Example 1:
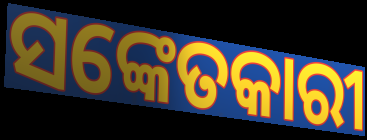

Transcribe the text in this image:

ସଙ୍କେତକାରୀ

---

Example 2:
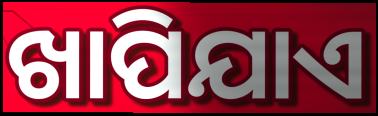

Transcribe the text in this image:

ଖାପିଯାଏ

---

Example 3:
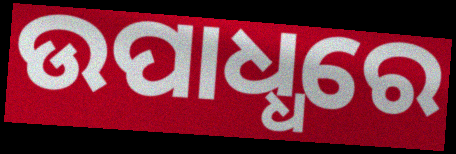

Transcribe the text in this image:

ଉପାଧ୍ଧରେ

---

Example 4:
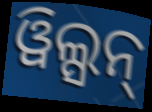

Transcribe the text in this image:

ୱିଲ୍ସନ୍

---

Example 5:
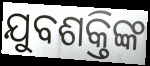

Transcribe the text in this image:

ଯୁବଶକ୍ତିଙ୍କ